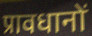
प्रावधानों